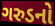
ગરુડનો